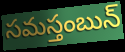
సమస్తంబున్